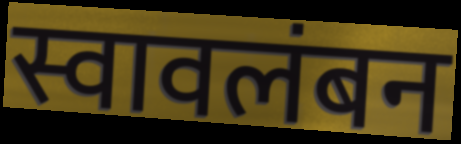
स्वावलंबन